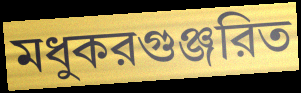
মধুকরগুঞ্জরিত